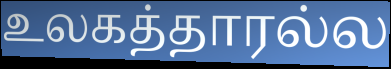
உலகத்தாரல்ல